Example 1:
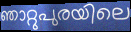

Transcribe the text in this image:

ഞാറ്റുപുരയിലെ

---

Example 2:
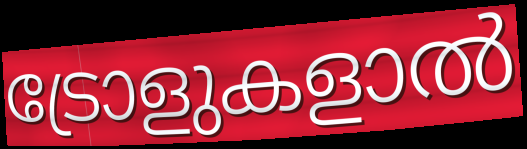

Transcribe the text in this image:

ട്രോളുകളാൽ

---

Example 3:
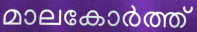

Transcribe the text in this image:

മാലകോർത്ത്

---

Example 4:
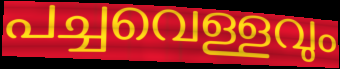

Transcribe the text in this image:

പച്ചവെള്ളവും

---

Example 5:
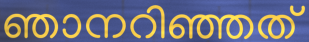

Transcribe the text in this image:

ഞാനറിഞ്ഞത്